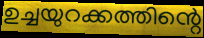
ഉച്ചയുറക്കത്തിന്റെ